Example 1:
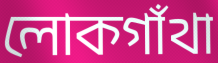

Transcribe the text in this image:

লোকগাঁথা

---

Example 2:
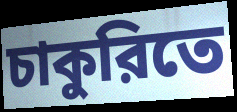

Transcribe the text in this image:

চাকুরিতে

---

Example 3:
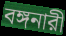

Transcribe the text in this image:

বঙ্গনারী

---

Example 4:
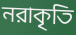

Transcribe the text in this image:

নরাকৃতি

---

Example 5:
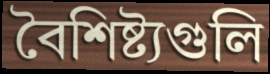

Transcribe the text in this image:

বৈশিষ্ট্যগুলি